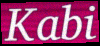
Kabi